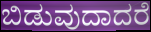
ಬಿಡುವುದಾದರೆ